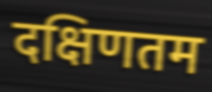
दक्षिणतम